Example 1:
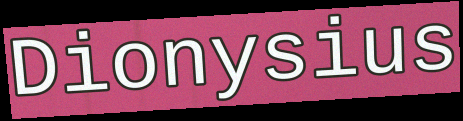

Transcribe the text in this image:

Dionysius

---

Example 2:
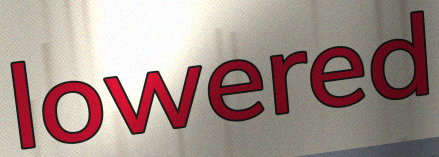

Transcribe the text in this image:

lowered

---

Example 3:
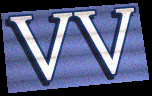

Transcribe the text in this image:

VV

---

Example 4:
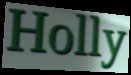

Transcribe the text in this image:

Holly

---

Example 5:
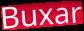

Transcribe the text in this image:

Buxar